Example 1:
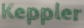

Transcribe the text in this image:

Keppler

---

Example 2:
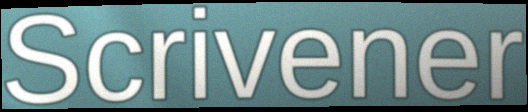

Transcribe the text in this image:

Scrivener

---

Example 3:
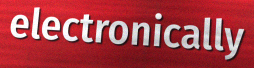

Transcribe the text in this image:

electronically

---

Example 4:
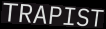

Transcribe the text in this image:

TRAPIST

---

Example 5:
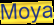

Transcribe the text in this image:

Moya